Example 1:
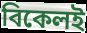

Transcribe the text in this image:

বিকেলই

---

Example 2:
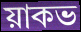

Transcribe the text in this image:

য়াকভ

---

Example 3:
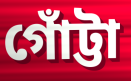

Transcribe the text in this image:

গোঁট্টা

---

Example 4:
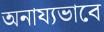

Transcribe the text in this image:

অনায্যভাবে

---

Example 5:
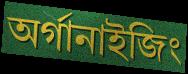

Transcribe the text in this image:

অর্গানাইজিং